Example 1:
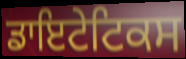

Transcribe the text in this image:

ਡਾਇਟੇਟਿਕਸ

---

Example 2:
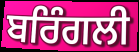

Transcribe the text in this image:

ਬਰਿੰਗਲੀ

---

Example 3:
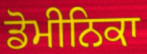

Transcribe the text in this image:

ਡੋਮੀਨਿਕਾ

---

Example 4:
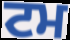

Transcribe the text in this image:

ਟਮ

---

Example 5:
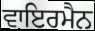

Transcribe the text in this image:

ਵਾਇਰਮੈਨ